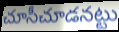
చూసీచూడనట్టు